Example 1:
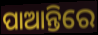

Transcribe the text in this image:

ପାଆନ୍ତିରେ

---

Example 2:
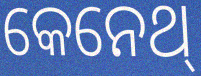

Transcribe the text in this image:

କେନେଥ୍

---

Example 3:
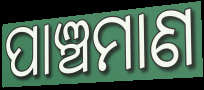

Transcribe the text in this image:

ପାଞ୍ଚମାଣ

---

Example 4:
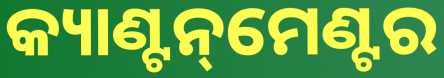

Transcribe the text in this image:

କ୍ୟାଣ୍ଟନ୍‌ମେଣ୍ଟର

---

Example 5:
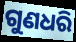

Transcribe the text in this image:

ଗୁଣଧରି